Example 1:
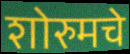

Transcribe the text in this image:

शोरुमचे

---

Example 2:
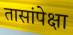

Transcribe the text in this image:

तासांपेक्षा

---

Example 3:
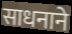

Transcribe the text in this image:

साधनाने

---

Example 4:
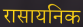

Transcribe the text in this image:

रासायनिक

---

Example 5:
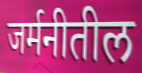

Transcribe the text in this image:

जर्मनीतील